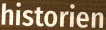
historien